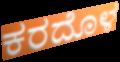
ಕರದೊಳ